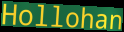
Hollohan